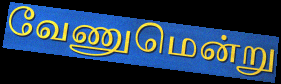
வேணுமென்று